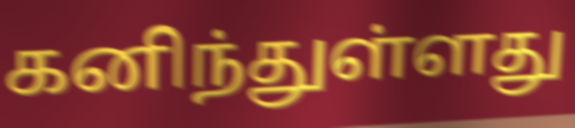
கனிந்துள்ளது